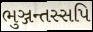
ભુઞ્જન્તસ્સપિ